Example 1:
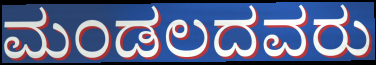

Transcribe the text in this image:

ಮಂಡಲದವರು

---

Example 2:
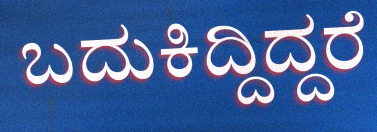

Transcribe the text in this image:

ಬದುಕಿದ್ದಿದ್ದರೆ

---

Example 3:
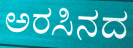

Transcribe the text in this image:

ಅರಸಿನದ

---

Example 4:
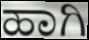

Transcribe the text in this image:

ಹಾಗಿ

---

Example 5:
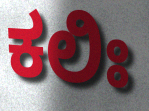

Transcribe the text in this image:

ಕಲಿಃ